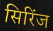
सिरिंज